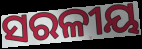
ସରଳୀୟ